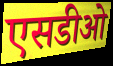
एसडीओ